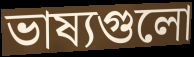
ভাষ্যগুলো